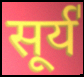
सूर्य॑